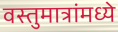
वस्तुमात्रांमध्ये